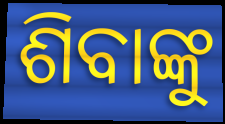
ଶିବାଙ୍କୁ